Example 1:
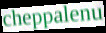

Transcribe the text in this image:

cheppalenu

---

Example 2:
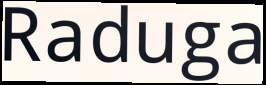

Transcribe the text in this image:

Raduga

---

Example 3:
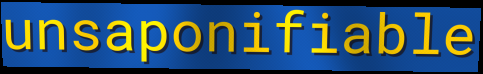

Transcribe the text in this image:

unsaponifiable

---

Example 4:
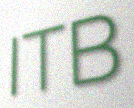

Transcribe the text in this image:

ITB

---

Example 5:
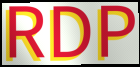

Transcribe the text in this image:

RDP